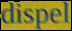
dispel